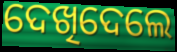
ଦେଖିଦେଲେ